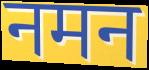
नमन